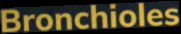
Bronchioles